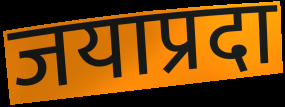
जयाप्रदा